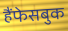
हैंफेसबुक